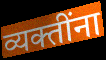
व्यक्‍तींना